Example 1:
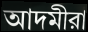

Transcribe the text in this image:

আদমীরা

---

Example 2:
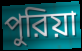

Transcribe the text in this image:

পুরিয়া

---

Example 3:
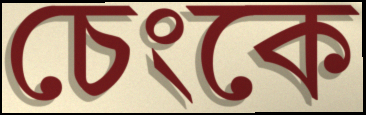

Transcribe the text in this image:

চেংকে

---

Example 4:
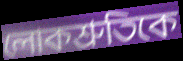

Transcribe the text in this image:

লোকশ্রুতিকে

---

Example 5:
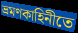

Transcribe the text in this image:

ভ্রমণকাহিনীতে